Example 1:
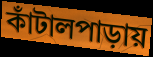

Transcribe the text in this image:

কাঁটালপাড়ায়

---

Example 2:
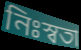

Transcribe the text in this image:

নিঃস্বতা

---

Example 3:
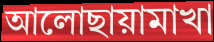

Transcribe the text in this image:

আলোছায়ামাখা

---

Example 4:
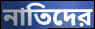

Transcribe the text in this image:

নাতিদের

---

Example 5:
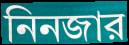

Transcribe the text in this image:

নিনজার